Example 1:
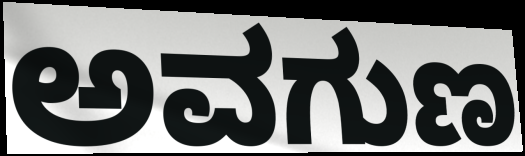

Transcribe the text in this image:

ಅವಗುಣ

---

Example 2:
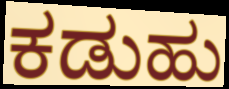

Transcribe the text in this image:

ಕಡುಹು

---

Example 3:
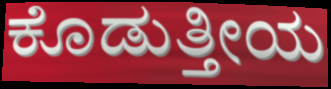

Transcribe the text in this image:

ಕೊಡುತ್ತೀಯ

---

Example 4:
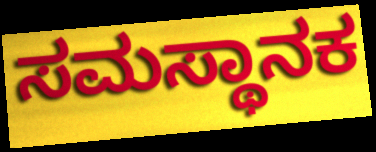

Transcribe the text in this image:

ಸಮಸ್ಥಾನಕ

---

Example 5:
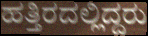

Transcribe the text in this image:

ಹತ್ತಿರದಲ್ಲಿದ್ದರು